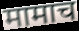
मामाच